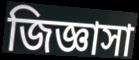
জিজ্ঞাসা